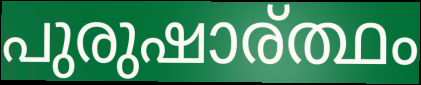
പുരുഷാര്ത്ഥം